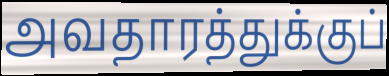
அவதாரத்துக்குப்